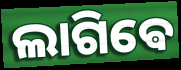
ଲାଗିଵେ